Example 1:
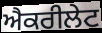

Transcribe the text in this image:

ਐਕਰੀਲੇਟ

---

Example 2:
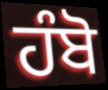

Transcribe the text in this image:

ਹੰਬੋ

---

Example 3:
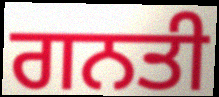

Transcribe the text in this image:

ਗਨਤੀ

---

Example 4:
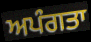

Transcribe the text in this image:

ਅਪੰਗਤਾ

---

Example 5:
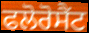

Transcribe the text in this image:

ਫਲੋਰੋਸੈਂਟ